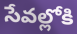
సేవల్లోకి